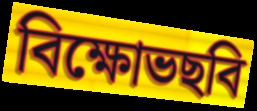
বিক্ষোভছবি